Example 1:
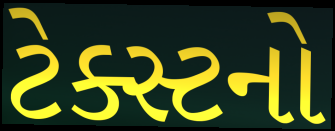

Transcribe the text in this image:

ટેક્સ્ટનો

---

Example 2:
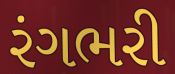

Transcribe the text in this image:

રંગભરી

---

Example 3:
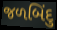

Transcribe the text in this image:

જળબિંદુ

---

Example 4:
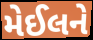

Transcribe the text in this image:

મેઈલને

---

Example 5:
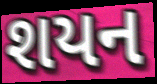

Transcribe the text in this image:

શયન